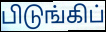
பிடுங்கிப்